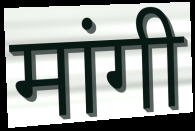
मांगी